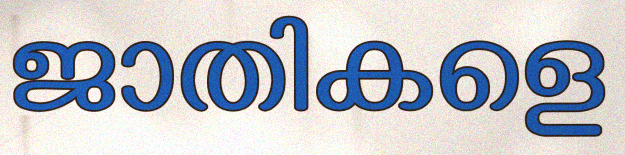
ജാതികളെ